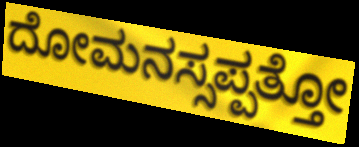
ದೋಮನಸ್ಸಪ್ಪತ್ತೋ